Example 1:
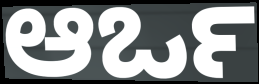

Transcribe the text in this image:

ಆರ್ಒ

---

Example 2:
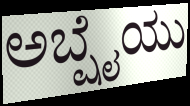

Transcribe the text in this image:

ಅಬ್ಷೈಯು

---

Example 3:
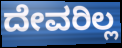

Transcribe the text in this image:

ದೇವರಿಲ್ಲ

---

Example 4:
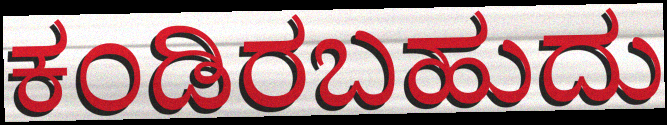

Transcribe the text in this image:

ಕಂಡಿರಬಹುದು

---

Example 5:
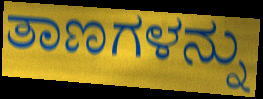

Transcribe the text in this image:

ತಾಣಗಳನ್ನು